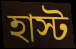
হাস্ট